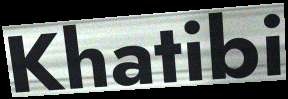
Khatibi